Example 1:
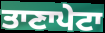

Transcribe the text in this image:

ਤਾਣਾਪੇਟਾ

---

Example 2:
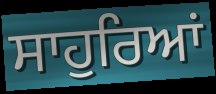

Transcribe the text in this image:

ਸਾਹੁਰਿਆਂ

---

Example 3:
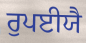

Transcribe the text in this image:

ਰੁਪਈਯੈ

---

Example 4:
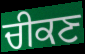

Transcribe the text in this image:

ਚੀਕਣ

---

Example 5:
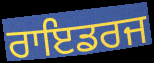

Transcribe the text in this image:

ਰਾਇਡਰਜ